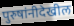
पुरुषांनीदेखील